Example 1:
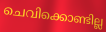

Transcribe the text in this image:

ചെവിക്കൊണ്ടില്ല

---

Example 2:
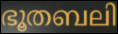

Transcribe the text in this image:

ഭൂതബലി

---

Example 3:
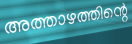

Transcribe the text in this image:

അത്താഴത്തിന്റെ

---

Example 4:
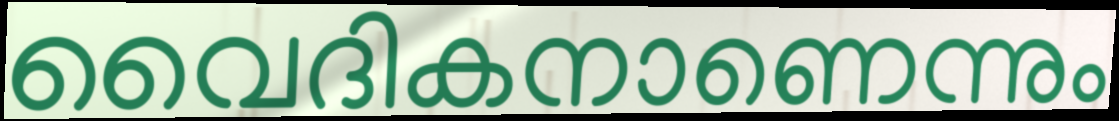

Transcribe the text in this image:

വൈദികനാണെന്നും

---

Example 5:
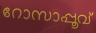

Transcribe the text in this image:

റോസാപ്പൂവ്